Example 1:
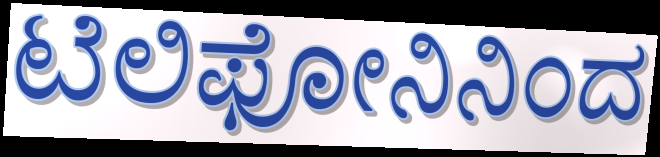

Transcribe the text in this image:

ಟೆಲಿಫೋನಿನಿಂದ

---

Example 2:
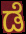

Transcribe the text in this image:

ಡೆ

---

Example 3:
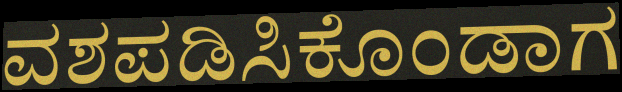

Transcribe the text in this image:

ವಶಪಡಿಸಿಕೊಂಡಾಗ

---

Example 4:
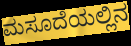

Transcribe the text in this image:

ಮಸೂದೆಯಲ್ಲಿನ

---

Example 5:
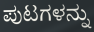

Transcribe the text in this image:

ಪುಟಗಳನ್ನು